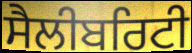
ਸੈਲੀਬਰਿਟੀ